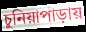
চুনিয়াপাড়ায়